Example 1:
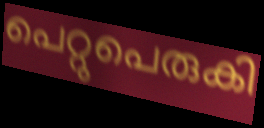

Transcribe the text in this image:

പെറ്റുപെരുകി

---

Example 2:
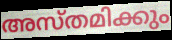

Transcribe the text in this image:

അസ്തമിക്കും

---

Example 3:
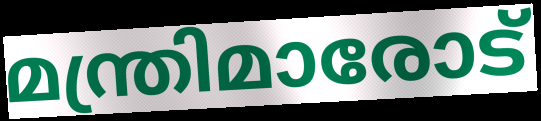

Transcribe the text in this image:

മന്ത്രിമാരോട്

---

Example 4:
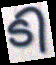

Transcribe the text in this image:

ടി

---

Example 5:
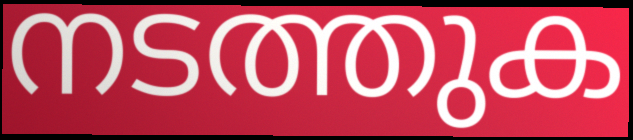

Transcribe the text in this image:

നടത്തുക